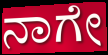
ನಾಗೇ